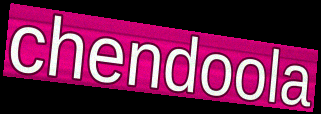
chendoola